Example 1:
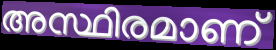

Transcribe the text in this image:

അസ്ഥിരമാണ്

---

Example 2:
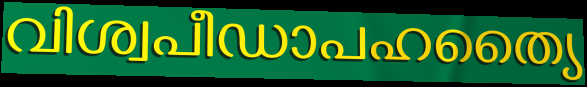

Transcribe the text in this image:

വിശ്വപീഡാപഹത്യൈ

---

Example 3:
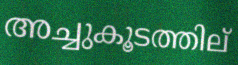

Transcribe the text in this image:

അച്ചുകൂടത്തില്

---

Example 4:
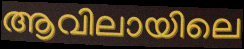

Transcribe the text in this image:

ആവിലായിലെ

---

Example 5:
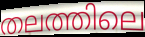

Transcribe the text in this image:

തലത്തിലെ